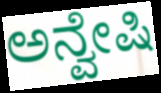
ಅನ್ವೇಷಿ